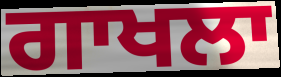
ਗਾਖਲਾ